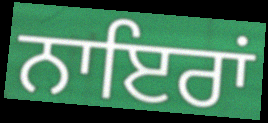
ਨਾਇਰਾਂ